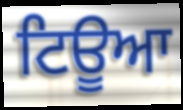
ਟਿਊਆ